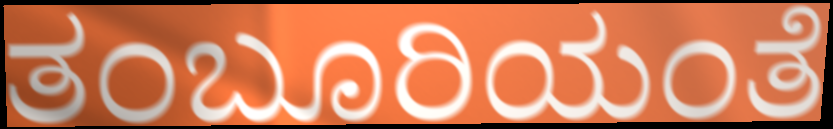
ತಂಬೂರಿಯಂತೆ